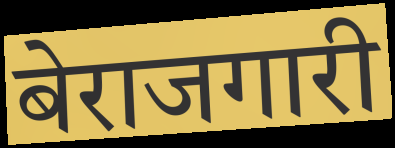
बेराजगारी